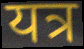
यत्र